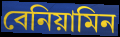
বেনিয়ামিন